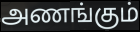
அணங்கும்